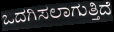
ಒದಗಿಸಲಾಗುತ್ತಿದೆ